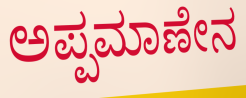
ಅಪ್ಪಮಾಣೇನ